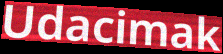
Udacimak